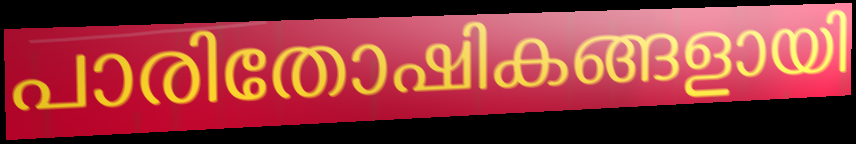
പാരിതോഷികങ്ങളായി